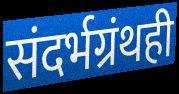
संदर्भग्रंथही